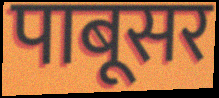
पाबूसर